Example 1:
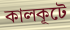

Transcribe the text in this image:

কালকূটে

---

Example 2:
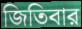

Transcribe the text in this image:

জিতিবার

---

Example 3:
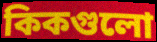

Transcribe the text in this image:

কিকগুলো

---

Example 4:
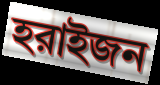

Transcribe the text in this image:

হরাইজন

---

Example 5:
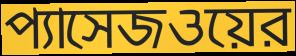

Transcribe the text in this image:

প্যাসেজওয়ের